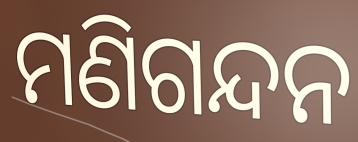
ମଣିଗନ୍ଦନ